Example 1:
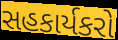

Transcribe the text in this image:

સહકાર્યકરો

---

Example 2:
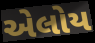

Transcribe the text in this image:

એલોય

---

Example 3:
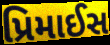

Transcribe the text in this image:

પ્રિમાઈસ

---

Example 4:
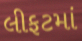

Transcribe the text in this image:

લીફટમાં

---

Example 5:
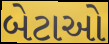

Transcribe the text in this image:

બેટાઓ